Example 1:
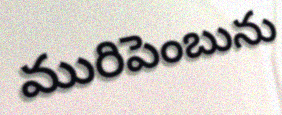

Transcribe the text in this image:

మురిపెంబును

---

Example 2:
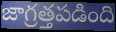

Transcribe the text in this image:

జాగ్రత్తపడింది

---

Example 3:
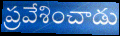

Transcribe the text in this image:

ప్రవేశించాడు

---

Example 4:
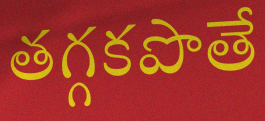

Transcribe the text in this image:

తగ్గకపొతే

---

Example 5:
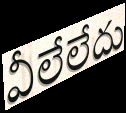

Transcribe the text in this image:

వీలేలేదు